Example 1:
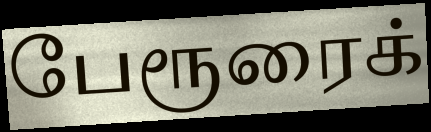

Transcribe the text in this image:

பேரூரைக்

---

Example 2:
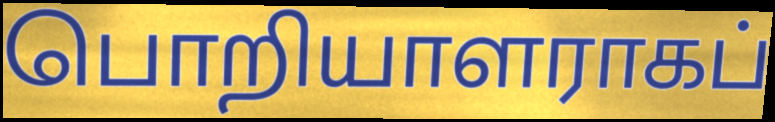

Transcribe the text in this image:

பொறியாளராகப்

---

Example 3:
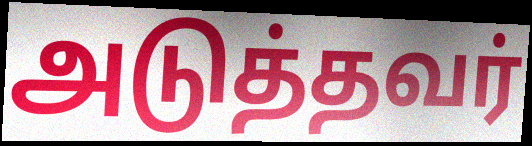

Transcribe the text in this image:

அடுத்தவர்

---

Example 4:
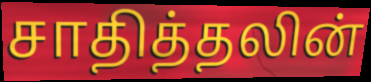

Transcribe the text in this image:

சாதித்தலின்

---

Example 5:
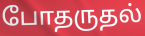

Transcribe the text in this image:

போதருதல்